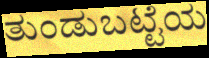
ತುಂಡುಬಟ್ಟೆಯ